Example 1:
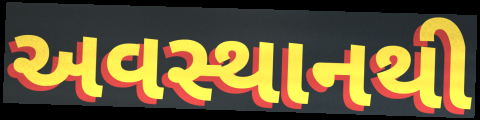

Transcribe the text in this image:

અવસ્થાનથી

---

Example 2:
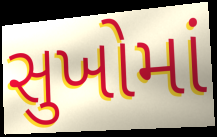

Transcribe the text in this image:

સુખોમાં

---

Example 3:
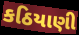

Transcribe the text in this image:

કઠિયાણી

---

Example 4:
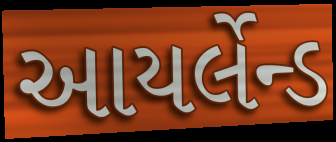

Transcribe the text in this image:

આયર્લેન્ડ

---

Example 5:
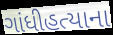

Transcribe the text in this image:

ગાંધીહત્યાના